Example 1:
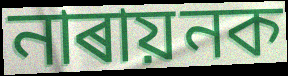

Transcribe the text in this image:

নাৰায়নক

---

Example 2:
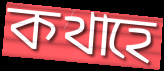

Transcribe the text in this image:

কথাহে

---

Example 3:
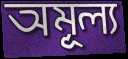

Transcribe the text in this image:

অমূল্য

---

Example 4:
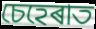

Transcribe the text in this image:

চেহেৰাত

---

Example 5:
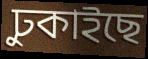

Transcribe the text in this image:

ঢুকাইছে